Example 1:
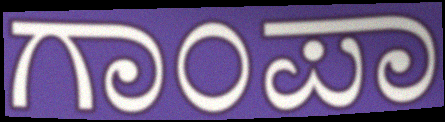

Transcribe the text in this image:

ಗಾಂಪಾ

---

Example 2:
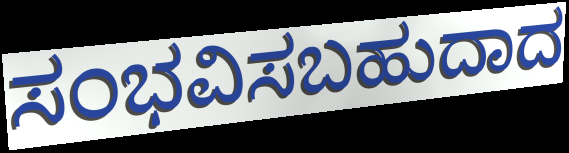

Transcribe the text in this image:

ಸಂಭವಿಸಬಹುದಾದ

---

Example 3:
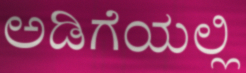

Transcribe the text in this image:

ಅಡಿಗೆಯಲ್ಲಿ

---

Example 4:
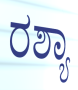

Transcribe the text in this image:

ರಶ್ಯಾ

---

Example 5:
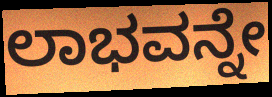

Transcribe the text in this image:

ಲಾಭವನ್ನೇ